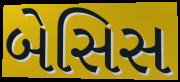
બેસિસ